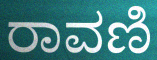
ರಾವಣಿ